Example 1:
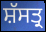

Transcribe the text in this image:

ਸ਼ੱਸਤ੍ਰ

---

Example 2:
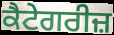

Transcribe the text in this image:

ਕੈਟੇਗਰੀਜ਼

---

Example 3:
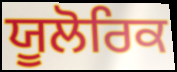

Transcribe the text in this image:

ਯੂਲੋਰਿਕ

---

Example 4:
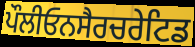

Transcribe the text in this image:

ਪੌਲੀਓਨਸੈਰਚਰੇਟਿਡ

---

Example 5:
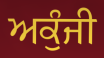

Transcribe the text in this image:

ਅਕੁੰਜੀ